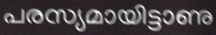
പരസ്യമായിട്ടാണു